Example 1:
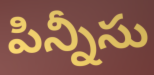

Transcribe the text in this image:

పిన్నీసు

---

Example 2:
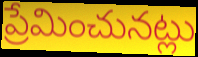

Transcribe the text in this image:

ప్రేమించునట్లు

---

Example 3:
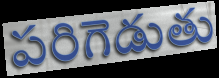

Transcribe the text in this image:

పరిగెడుతు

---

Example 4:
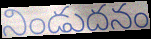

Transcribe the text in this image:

నిండుదనం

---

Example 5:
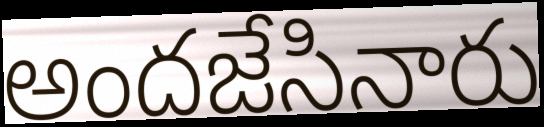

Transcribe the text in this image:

అందజేసినారు